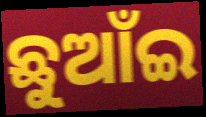
ଛୁଆଁଇ